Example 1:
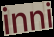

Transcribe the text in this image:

inni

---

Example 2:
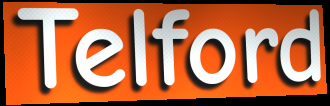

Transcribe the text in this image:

Telford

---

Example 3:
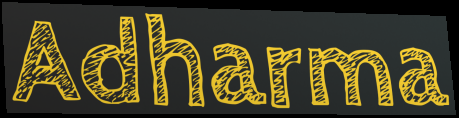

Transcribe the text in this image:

Adharma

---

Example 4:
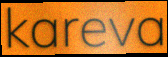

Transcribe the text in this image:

kareva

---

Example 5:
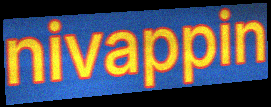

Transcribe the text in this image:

nivappin